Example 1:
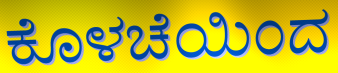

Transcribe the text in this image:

ಕೊಳಚೆಯಿಂದ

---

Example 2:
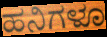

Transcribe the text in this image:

ಹನಿಗಳೂ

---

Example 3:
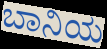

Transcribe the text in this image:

ಬಾನಿಯ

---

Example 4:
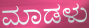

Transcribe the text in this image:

ಮಾಡಳು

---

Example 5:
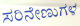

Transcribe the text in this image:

ಸರಿನೇಣುಗಳ